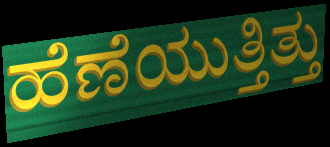
ಹೆಣೆಯುತ್ತಿತ್ತು